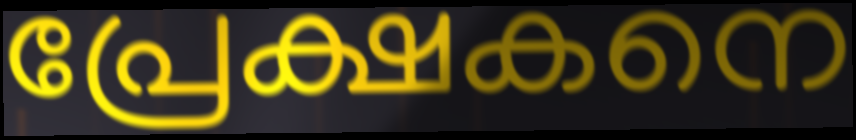
പ്രേക്ഷകനെ